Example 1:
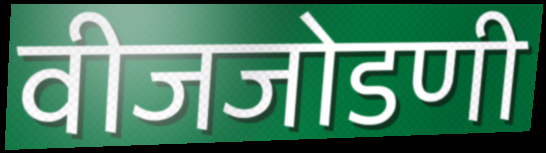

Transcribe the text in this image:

वीजजोडणी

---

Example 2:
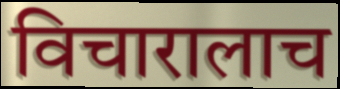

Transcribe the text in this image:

विचारालाच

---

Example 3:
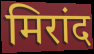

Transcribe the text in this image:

मिरांद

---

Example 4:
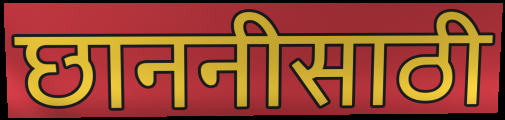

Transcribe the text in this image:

छाननीसाठी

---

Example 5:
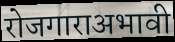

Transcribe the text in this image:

रोजगाराअभावी